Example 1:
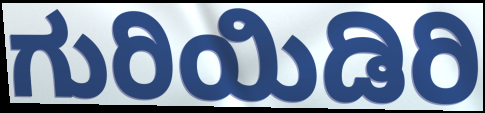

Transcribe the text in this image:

ಗುರಿಯಿಡಿರಿ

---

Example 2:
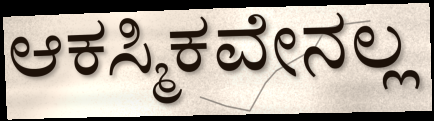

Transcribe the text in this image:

ಆಕಸ್ಮಿಕವೇನಲ್ಲ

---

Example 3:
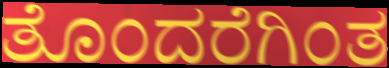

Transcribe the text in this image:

ತೊಂದರೆಗಿಂತ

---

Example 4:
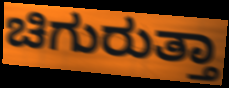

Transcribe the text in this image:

ಚಿಗುರುತ್ತಾ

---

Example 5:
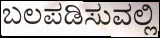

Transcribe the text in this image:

ಬಲಪಡಿಸುವಲ್ಲಿ